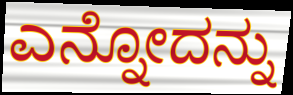
ಎನ್ನೋದನ್ನು